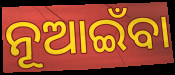
ନୂଆଇଁବା